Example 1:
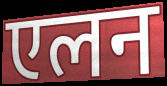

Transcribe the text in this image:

एलन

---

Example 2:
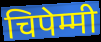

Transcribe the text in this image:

चिपेम्मी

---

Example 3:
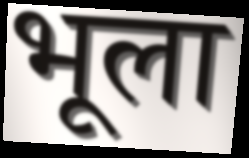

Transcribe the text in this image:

भूला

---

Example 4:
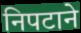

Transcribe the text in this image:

निपटाने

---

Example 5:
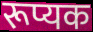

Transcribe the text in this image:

रूप्यक